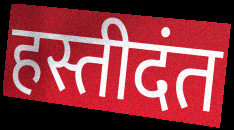
हस्तीदंत